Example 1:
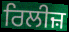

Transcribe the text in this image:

ਰਿਲੀਜ਼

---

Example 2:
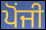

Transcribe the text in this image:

ਪੋਂਜੀ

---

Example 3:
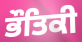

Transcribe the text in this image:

ਭੌਤਿਕੀ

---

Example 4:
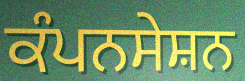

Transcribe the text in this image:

ਕੰਪਨਸੇਸ਼ਨ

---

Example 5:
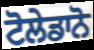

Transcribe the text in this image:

ਟੋਲੇਡਾਨੋ